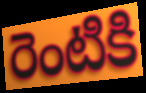
రెంటికి